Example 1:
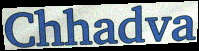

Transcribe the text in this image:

Chhadva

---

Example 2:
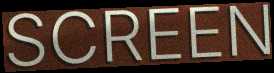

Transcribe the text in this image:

SCREEN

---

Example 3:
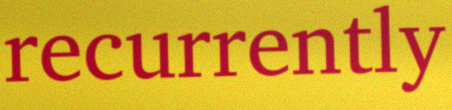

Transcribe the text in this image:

recurrently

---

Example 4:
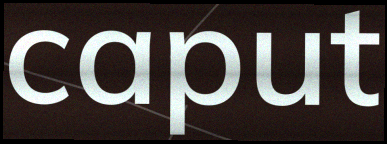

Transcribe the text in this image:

caput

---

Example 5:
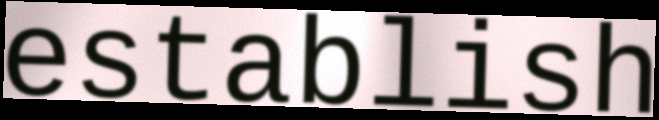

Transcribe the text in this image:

establish